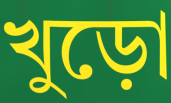
খুড়ো